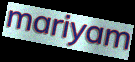
mariyam